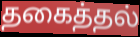
தகைத்தல்